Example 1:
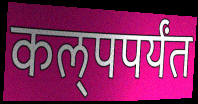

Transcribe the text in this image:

कल्पपर्यंत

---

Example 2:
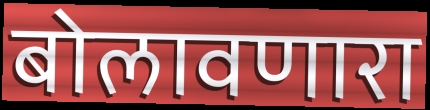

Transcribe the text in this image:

बोलावणारा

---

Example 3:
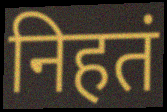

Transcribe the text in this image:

निहतं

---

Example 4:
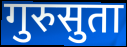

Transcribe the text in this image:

गुरुसुता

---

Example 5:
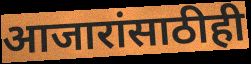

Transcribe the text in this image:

आजारांसाठीही